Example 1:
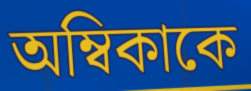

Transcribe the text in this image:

অম্বিকাকে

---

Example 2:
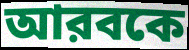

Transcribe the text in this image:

আরবকে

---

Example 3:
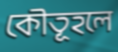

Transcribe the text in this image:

কৌতূহলে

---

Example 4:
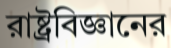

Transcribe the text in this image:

রাষ্ট্রবিজ্ঞানের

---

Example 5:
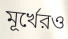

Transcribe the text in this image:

মূর্খেরও